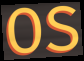
OS